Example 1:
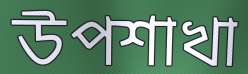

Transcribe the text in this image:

উপশাখা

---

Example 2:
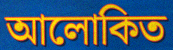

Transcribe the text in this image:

আলোকিত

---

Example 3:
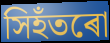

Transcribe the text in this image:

সিহঁতৰো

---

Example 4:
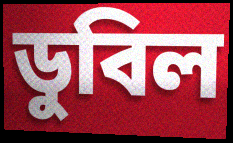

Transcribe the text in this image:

ডুবিল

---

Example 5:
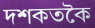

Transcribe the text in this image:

দশকতকৈ